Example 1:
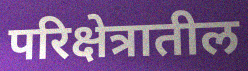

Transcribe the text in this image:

परिक्षेत्रातील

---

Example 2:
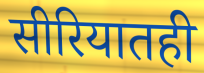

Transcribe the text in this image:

सीरियातही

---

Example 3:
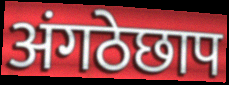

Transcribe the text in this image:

अंगठेछाप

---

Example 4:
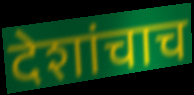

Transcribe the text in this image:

देशांचाच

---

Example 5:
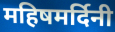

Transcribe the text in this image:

महिषमर्दिनी